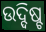
ଉଦ୍ଦିଷ୍ଚ